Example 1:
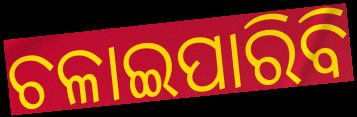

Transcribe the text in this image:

ଚଳାଇପାରିବି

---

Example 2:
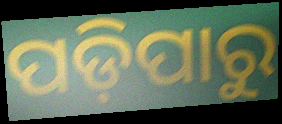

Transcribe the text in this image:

ପଡ଼ିପାରୁ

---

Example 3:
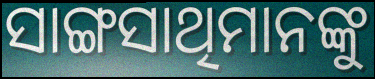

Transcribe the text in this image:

ସାଙ୍ଗସାଥିମାନଙ୍କୁ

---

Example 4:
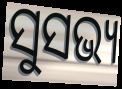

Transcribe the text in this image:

ସୁସଭ୍ୟ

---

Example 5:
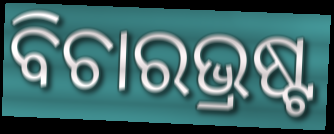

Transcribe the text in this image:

ବିଚାରଭ୍ରଷ୍ଟ